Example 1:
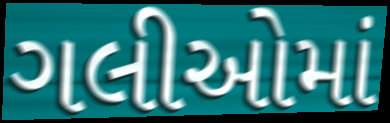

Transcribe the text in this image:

ગલીઓમાં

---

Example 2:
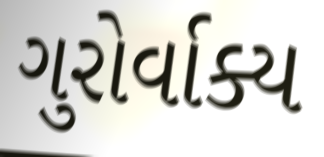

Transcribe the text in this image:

ગુરોર્વાક્ય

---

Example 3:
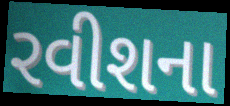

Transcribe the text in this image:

રવીશના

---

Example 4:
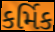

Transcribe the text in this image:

કર્મિક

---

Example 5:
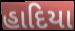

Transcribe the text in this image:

હાદિયા